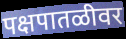
पक्षपातळीवर